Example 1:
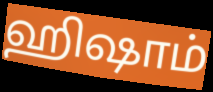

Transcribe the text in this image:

ஹிஷாம்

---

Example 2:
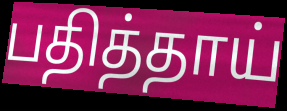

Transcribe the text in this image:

பதித்தாய்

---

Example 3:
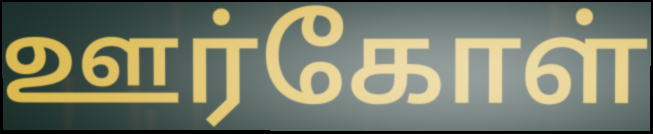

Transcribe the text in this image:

ஊர்கோள்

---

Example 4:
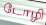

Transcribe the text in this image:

டோழி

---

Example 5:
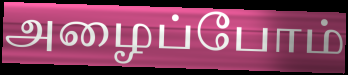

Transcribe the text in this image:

அழைப்போம்